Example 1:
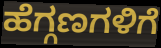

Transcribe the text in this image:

ಹೆಗ್ಗಣಗಳಿಗೆ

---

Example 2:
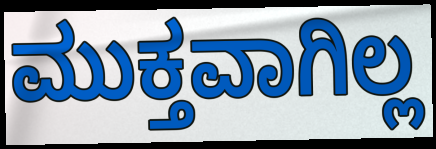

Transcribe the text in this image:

ಮುಕ್ತವಾಗಿಲ್ಲ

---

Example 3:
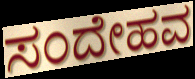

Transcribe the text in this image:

ಸಂದೇಹವ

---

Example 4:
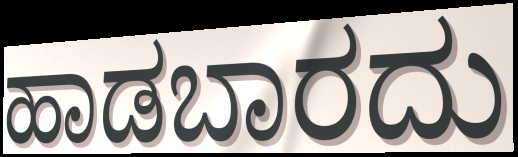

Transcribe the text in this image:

ಹಾಡಬಾರದು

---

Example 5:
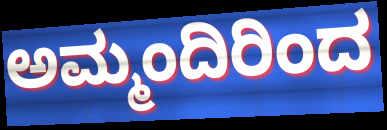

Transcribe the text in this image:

ಅಮ್ಮಂದಿರಿಂದ